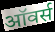
ऑवर्स